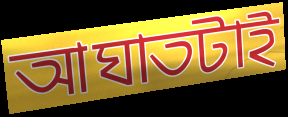
আঘাতটাই